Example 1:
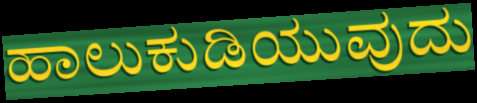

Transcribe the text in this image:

ಹಾಲುಕುಡಿಯುವುದು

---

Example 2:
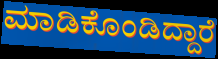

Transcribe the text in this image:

ಮಾಡಿಕೊಂಡಿದ್ದಾರೆ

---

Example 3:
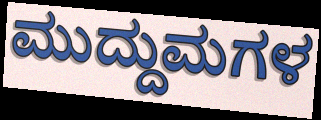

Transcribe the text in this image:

ಮುದ್ದುಮಗಳ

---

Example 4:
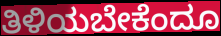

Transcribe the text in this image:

ತಿಳಿಯಬೇಕೆಂದೂ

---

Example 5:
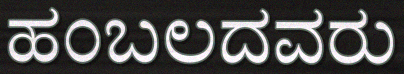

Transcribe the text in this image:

ಹಂಬಲದವರು